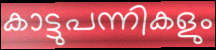
കാട്ടുപന്നികളും